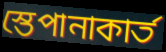
স্তেপানাকার্ত